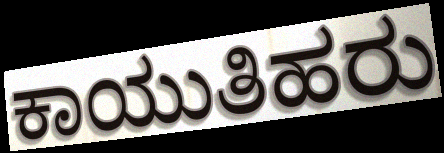
ಕಾಯುತಿಹರು